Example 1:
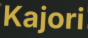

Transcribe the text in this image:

Kajori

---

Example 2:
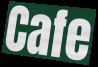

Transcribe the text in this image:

Cafe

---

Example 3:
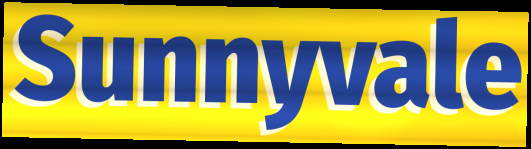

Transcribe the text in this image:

Sunnyvale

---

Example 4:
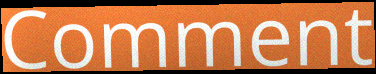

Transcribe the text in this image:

Comment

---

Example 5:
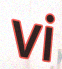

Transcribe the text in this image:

vi